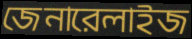
জেনারেলাইজ